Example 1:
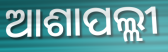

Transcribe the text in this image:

ଆଶାପଲ୍ଲୀ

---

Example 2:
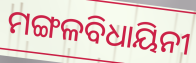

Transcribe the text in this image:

ମଙ୍ଗଳବିଧାୟିନୀ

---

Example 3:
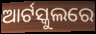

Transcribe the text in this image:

ଆର୍ଟସ୍କୁଲରେ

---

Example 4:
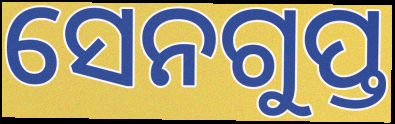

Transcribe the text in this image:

ସେନଗୁପ୍ତ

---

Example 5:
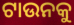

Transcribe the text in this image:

ଟାଉନକୁ